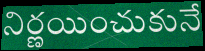
నిర్ణయించుకునే